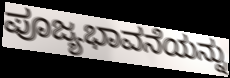
ಪೂಜ್ಯಭಾವನೆಯನ್ನು